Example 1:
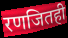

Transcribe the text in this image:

रणजितही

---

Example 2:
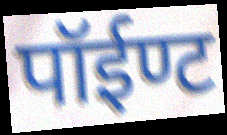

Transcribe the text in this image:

पॉईण्ट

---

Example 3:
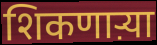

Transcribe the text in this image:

शिकणाऱ्‍या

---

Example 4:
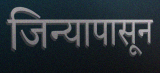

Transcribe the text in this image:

जिन्यापासून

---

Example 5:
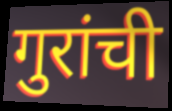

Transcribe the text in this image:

गुरांची